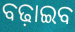
ବଢ଼ାଇବ